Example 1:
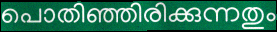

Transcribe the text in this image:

പൊതിഞ്ഞിരിക്കുന്നതും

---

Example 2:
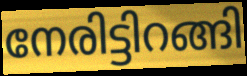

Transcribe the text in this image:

നേരിട്ടിറങ്ങി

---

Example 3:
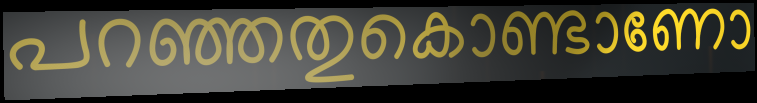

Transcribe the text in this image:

പറഞ്ഞതുകൊണ്ടാണോ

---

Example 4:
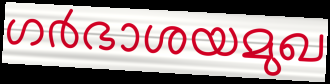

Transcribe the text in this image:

ഗർഭാശയമുഖ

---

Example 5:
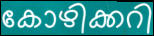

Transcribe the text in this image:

കോഴിക്കറി